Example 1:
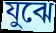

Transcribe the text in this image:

যুঝে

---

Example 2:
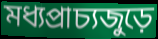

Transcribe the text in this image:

মধ্যপ্রাচ্যজুড়ে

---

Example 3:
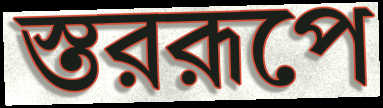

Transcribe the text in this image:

স্তররূপে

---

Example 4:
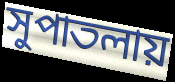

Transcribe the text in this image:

সুপাতলায়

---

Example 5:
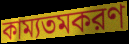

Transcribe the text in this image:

কাম্যতমকরণ